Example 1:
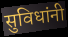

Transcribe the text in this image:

सुविधांनी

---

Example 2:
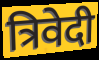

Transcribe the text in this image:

त्रिवेदी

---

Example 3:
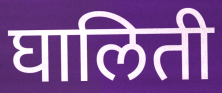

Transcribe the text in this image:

घालिती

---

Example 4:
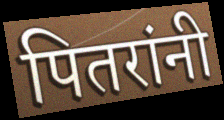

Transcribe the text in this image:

पितरांनी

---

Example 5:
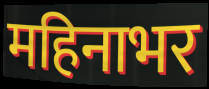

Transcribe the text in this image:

महिनाभर